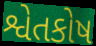
શ્વેતકોષ